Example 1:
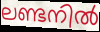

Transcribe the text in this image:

ലണ്ടനിൽ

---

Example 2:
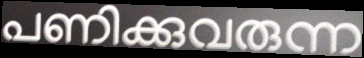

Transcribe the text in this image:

പണിക്കുവരുന്ന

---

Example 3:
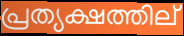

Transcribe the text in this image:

പ്രത്യക്ഷത്തില്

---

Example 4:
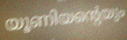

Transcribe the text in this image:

യൂണിയന്റെയും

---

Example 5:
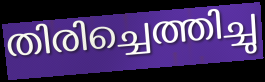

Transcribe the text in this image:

തിരിച്ചെത്തിച്ചു